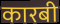
कारबी